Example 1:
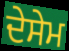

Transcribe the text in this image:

ਦੇਸੇਮ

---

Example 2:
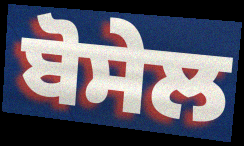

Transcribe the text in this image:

ਬੋਸੇਲ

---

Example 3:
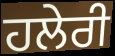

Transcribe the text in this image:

ਹਲੇਰੀ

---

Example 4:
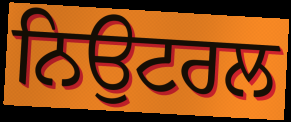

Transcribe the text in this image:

ਨਿਉਟਰਲ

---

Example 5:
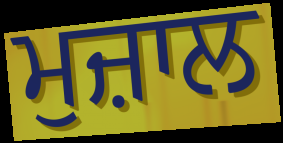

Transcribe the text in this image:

ਮੁਜ਼ਾਲ